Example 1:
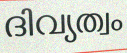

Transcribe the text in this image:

ദിവ്യത്വം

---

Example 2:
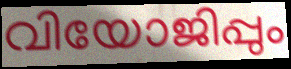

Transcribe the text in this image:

വിയോജിപ്പും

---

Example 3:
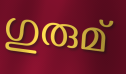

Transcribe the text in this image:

ഗുരുമ്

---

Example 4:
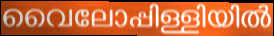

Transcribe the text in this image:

വൈലോപ്പിള്ളിയിൽ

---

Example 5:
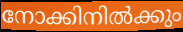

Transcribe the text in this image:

നോക്കിനിൽക്കും